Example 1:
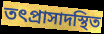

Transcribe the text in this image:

তৎপ্রাসাদস্থিত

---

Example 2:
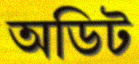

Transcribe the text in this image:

অডিট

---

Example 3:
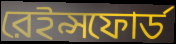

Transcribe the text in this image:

রেইন্সফোর্ড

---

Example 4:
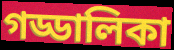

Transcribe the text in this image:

গড্ডালিকা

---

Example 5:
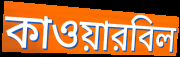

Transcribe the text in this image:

কাওয়ারবিল